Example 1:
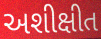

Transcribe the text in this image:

અશીક્ષીત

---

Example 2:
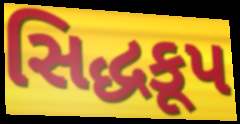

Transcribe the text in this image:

સિદ્ધકૂપ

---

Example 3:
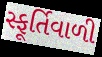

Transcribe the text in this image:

સ્ફૂર્તિવાળી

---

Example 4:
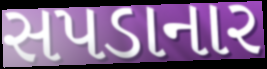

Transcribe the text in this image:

સપડાનાર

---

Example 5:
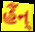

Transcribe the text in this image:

હૈંન્